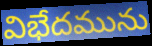
విభేదమును